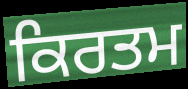
ਕਿਰਤਮ